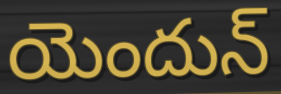
యెందున్